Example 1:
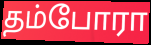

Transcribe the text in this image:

தம்போரா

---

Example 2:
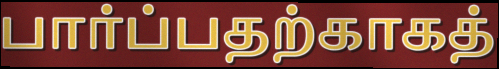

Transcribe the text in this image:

பார்ப்பதற்காகத்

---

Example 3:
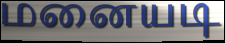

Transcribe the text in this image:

மனையடி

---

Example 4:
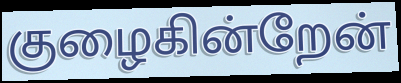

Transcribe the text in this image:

குழைகின்றேன்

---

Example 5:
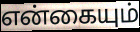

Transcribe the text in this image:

என்கையும்